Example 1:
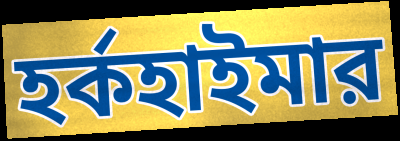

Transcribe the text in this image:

হর্কহাইমার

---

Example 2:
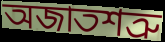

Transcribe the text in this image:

অজাতশত্রু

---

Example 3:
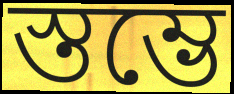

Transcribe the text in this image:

স্তম্ভে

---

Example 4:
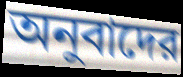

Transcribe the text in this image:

অনুবাদের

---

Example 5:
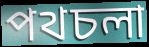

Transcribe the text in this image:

পথচলা